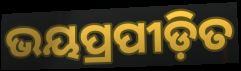
ଭୟପ୍ରପୀଡ଼ିତ